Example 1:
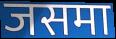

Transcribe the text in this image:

जसमा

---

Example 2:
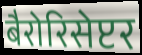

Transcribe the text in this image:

बैरोरिसेप्टर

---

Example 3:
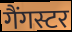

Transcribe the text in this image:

गैंगस्टर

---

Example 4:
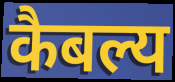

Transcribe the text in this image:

कैबल्य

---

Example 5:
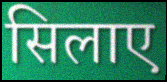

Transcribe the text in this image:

सिलाए